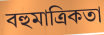
বহুমাত্রিকতা